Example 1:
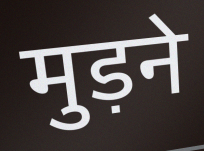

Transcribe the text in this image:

मुड़ने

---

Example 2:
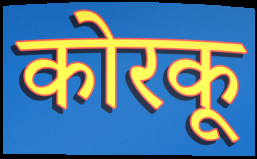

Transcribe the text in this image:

कोरकू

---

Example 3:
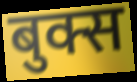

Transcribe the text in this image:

बुक्स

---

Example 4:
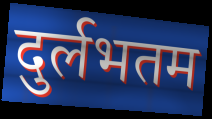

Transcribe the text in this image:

दुर्लभतम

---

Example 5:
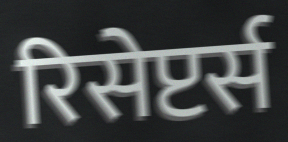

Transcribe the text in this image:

रिसेप्टर्स